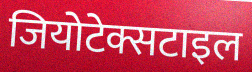
जियोटेक्सटाइल